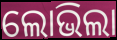
ଲୋଭିଲା